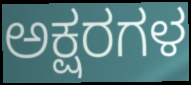
ಅಕ್ಷರಗಳ